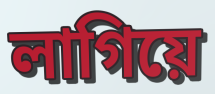
লাগিয়ে